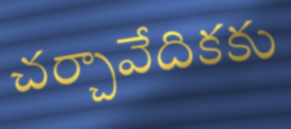
చర్చావేదికకు